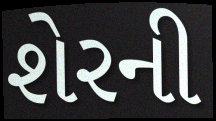
શેરની